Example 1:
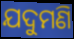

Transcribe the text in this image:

ଯଦୁମଣି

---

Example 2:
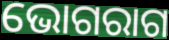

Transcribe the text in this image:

ଭୋଗରାଗ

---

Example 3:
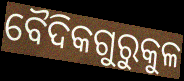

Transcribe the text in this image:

ବୈଦିକଗୁରୁକୁଳ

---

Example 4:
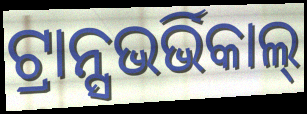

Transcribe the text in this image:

ଟ୍ରାନ୍ସଭର୍ଭିକାଲ୍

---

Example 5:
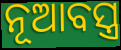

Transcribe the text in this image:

ନୂଆବସ୍ତ୍ର